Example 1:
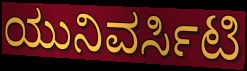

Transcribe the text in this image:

ಯುನಿವರ್ಸಿಟಿ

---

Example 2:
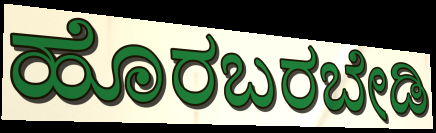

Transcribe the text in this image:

ಹೊರಬರಬೇಡಿ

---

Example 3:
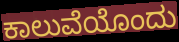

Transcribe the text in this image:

ಕಾಲುವೆಯೊಂದು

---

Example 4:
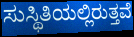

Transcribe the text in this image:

ಸುಸ್ಥಿತಿಯಲ್ಲಿರುತ್ತವೆ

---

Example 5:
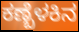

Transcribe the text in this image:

ಕಣ್ಬೆಳಕಿನ